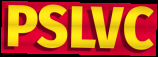
PSLVC